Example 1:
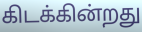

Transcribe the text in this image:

கிடக்கின்றது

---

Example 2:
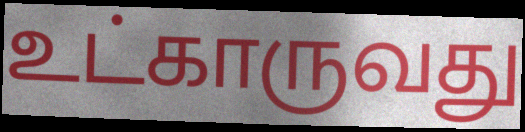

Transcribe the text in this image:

உட்காருவது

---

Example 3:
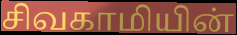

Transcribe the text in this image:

சிவகாமியின்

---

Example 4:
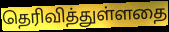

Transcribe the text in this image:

தெரிவித்துள்ளதை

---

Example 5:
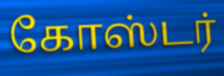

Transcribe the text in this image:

கோஸ்டர்